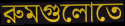
রুমগুলোতে